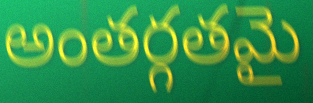
అంతర్గతమై